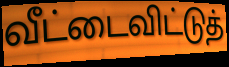
வீட்டைவிட்டுத்